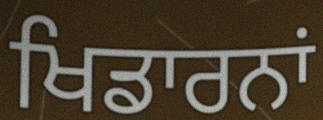
ਖਿਡਾਰਨਾਂ